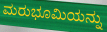
ಮರುಭೂಮಿಯನ್ನು